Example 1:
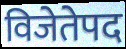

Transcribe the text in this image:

विजेतेपद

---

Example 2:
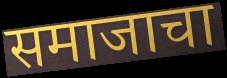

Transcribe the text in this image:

समाजाचा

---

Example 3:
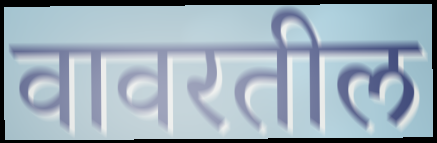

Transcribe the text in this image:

वावरतील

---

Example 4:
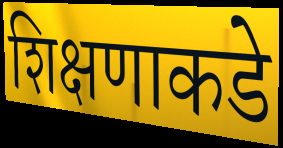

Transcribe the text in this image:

शिक्षणाकडे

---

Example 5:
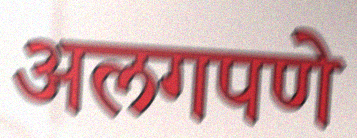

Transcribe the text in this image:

अलगपणे